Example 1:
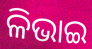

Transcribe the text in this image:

ଳିଭାଇ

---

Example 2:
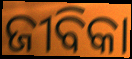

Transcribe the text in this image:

ଜୀବିକା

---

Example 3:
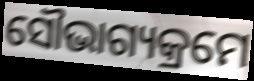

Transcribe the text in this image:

ସୌଭାଗ୍ୟକ୍ରମେ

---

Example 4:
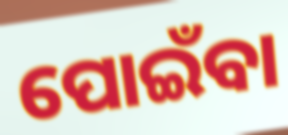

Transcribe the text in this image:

ପୋଇଁବା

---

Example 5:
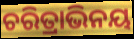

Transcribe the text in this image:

ଚରିତ୍ରାଭିନୟ